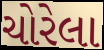
ચોરેલા